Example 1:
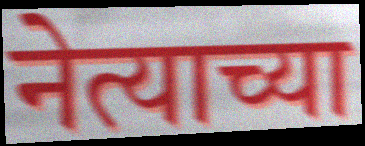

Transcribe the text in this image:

नेत्याच्या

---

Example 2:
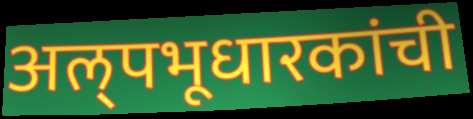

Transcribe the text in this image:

अल्पभूधारकांची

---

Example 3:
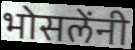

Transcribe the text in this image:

भोसलेंनी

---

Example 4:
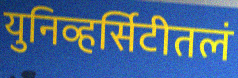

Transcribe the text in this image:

युनिव्हर्सिटीतलं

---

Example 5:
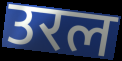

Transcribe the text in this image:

उरल